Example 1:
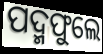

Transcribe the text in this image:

ପଦ୍ମଫୁଲେ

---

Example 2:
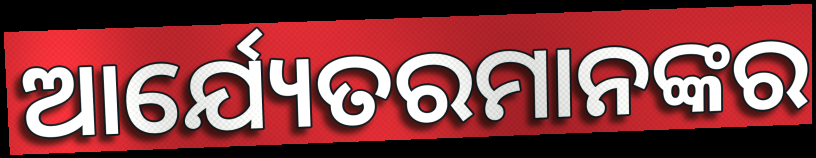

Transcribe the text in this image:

ଆର୍ଯ୍ୟେତରମାନଙ୍କର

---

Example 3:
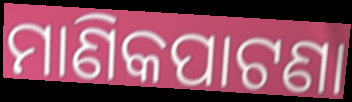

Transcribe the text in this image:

ମାଣିକପାଟଣା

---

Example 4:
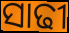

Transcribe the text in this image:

ସାଢୀ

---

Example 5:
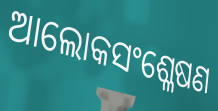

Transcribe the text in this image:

ଆଲୋକସଂଶ୍ଳେଷଣ